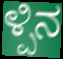
ಳ್ಪಿನ